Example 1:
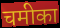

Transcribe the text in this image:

चमीका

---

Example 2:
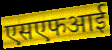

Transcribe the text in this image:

एसएफआई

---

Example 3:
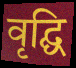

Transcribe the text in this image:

वृद्घि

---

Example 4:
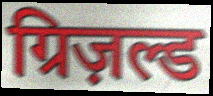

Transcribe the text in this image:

ग्रिज़ल्ड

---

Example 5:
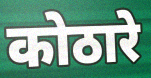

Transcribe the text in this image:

कोठारे